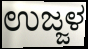
ಉಜ್ಜಳ